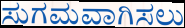
ಸುಗಮವಾಗಿಸಲು